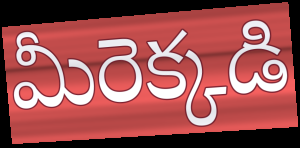
మీరెక్కడి